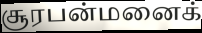
சூரபன்மனைக்